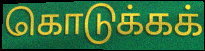
கொடுக்கக்